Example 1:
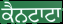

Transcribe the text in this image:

ਕੈਨਟਾਟਾ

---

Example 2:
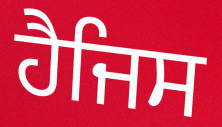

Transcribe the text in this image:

ਹੈਜਿਸ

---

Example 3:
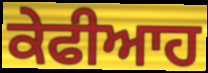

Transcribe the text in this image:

ਕੇਫੀਆਹ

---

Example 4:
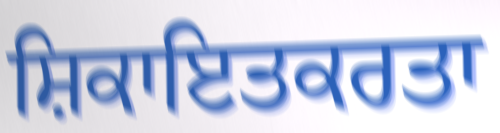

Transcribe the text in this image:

ਸ਼ਿਕਾਇਤਕਰਤਾ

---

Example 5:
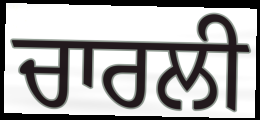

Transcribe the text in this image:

ਚਾਰਲੀ